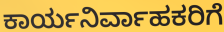
ಕಾರ್ಯನಿರ್ವಾಹಕರಿಗೆ